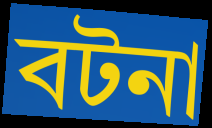
বটনা